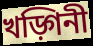
খড়্গিনী